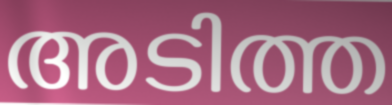
അടിത്ത